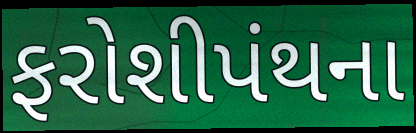
ફરોશીપંથના